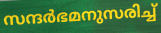
സന്ദർഭമനുസരിച്ച്